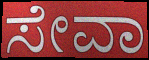
ಸೇವಾ